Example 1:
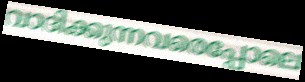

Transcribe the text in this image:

വാദിക്കുന്നവരെപ്പോലെ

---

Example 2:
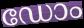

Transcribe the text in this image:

ഡോം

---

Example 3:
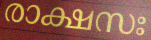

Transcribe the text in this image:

രാക്ഷസഃ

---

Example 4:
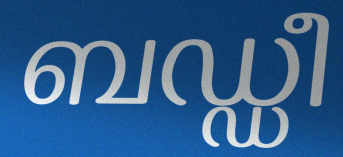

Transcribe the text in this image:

ബഡ്ഡീ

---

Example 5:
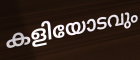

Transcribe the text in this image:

കളിയോടവും